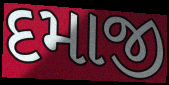
દમાજી